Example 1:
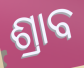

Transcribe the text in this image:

ଶ୍ରାବ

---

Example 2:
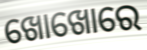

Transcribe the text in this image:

ଖୋଖୋରେ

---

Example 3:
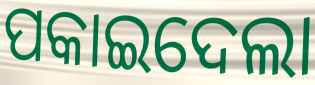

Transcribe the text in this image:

ପକାଇଦେଲା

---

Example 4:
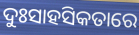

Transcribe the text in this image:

ଦୁଃସାହସିକତାରେ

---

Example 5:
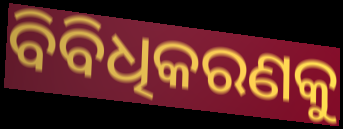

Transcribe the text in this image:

ବିବିଧିକରଣକୁ